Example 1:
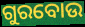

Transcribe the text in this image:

ଗୁରବୋଉ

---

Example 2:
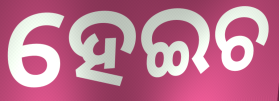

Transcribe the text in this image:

ହେଇଚ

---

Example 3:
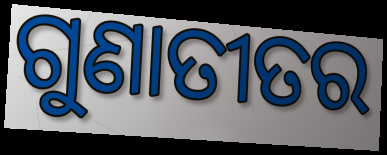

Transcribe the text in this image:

ଗୁଣାତୀତର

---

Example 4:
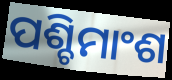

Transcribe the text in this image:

ପଶ୍ଚିମାଂଶ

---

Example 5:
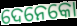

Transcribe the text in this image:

ଦେନେକୋ